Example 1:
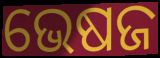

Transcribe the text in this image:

ଭେଷଜ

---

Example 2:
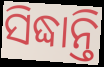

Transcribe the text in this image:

ସିଦ୍ଧାନ୍ତି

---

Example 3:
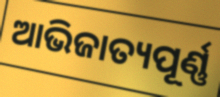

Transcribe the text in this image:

ଆଭିଜାତ୍ୟପୂର୍ଣ୍ଣ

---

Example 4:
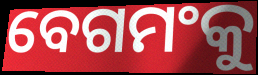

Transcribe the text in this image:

ବେଗମଂକୁ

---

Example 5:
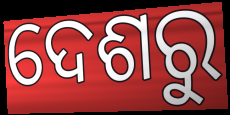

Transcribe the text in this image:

ଦେଶରୁ